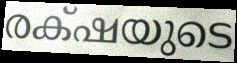
രക്‌ഷയുടെ